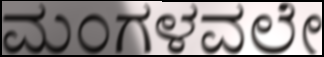
ಮಂಗಳವಲೇ